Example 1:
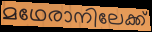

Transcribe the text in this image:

മഥേരാനിലേക്ക്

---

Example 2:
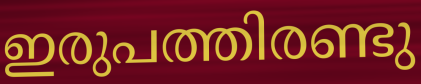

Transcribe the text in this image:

ഇരുപത്തിരണ്ടു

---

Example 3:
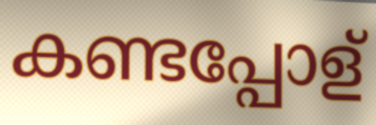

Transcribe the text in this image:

കണ്ടപ്പോള്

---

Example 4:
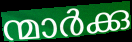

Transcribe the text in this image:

ന്മാർക്കു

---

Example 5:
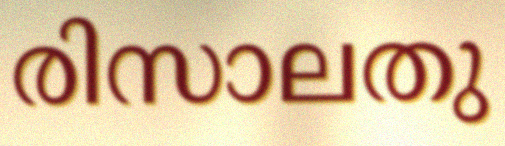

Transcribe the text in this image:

രിസാലതു